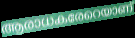
ആരാധകരേറെയാണ്